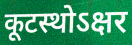
कूटस्थोऽक्षर